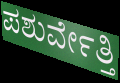
ಪಶುರ್ವೇತ್ತಿ